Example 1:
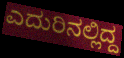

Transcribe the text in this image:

ಎದುರಿನಲ್ಲಿದ್ದ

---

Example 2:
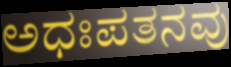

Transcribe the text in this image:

ಅಧಃಪತನವು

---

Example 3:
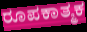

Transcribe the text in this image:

ರೂಪಕಾತ್ಮಕ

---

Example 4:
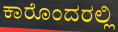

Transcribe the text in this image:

ಕಾರೊಂದರಲ್ಲಿ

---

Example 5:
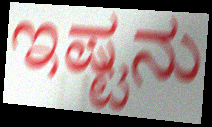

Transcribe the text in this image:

ಇಷ್ಟನು